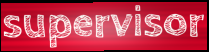
supervisor